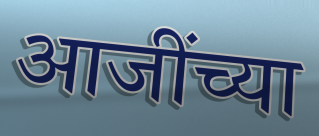
आजींच्या